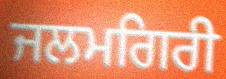
ਜਲਮਗਿਰੀ